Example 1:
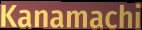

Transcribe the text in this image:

Kanamachi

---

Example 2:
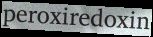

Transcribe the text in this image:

peroxiredoxin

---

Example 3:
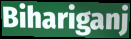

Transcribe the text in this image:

Bihariganj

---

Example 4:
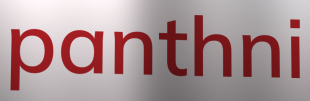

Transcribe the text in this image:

panthni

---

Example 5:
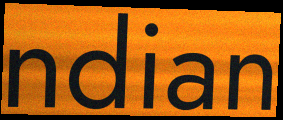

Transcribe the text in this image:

ndian